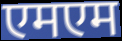
एमएम